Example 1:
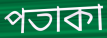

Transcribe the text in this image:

পতাকা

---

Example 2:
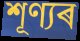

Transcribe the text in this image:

শূণ্যৰ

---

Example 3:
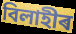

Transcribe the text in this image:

বিলাহীৰ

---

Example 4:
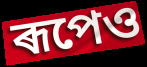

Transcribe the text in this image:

ৰূপেও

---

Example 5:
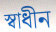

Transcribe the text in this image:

স্বাধীন